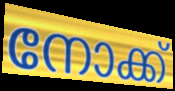
നോക്ക്